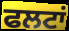
ਫਲਟਾਂ